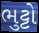
ભુટ્ટો